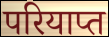
परियाप्त